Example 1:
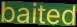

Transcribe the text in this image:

baited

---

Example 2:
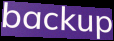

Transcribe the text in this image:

backup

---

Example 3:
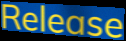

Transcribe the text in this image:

Release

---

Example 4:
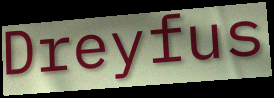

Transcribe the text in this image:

Dreyfus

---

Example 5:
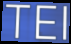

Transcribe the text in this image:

TEI